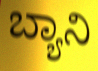
ಬ್ಯಾನಿ